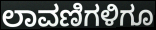
ಲಾವಣಿಗಳಿಗೂ